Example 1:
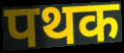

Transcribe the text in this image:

पथक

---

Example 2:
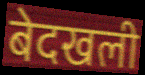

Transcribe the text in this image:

बेदखली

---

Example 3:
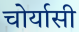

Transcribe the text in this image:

चोर्यासी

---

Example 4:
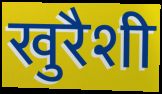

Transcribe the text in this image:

खुरैशी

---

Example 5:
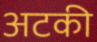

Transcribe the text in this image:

अटकी